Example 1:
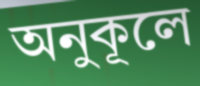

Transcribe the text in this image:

অনুকূলে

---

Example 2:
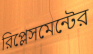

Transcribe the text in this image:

রিপ্লেসমেন্টের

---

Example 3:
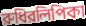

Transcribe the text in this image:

রুধিরলিপিকা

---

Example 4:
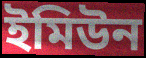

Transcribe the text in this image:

ইমিউন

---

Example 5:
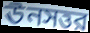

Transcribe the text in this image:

ঊনসত্তর